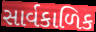
સાર્વકાળિક